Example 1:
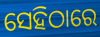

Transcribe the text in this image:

ସେହିଠାରେ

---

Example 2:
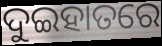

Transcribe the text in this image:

ଦୁଇହାତରେ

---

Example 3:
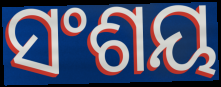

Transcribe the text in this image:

ସଂଶୟ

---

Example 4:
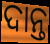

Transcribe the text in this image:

ଦାନ୍ତ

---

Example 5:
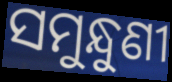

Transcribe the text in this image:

ସମୁନ୍ଧୁଣୀ